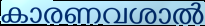
കാരണവശാൽ